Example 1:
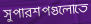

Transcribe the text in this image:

সুপারশপগুলোতে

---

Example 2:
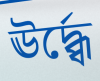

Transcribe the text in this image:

ঊর্দ্ধ্বে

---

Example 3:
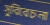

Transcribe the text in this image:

সুবিবেচনা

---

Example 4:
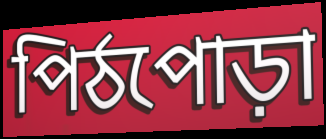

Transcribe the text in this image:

পিঠপোড়া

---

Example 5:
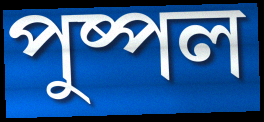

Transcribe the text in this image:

পুষ্পল